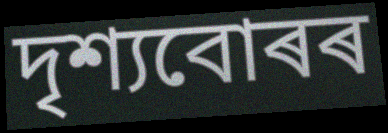
দৃশ্যবোৰৰ